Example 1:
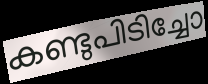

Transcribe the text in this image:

കണ്ടുപിടിച്ചോ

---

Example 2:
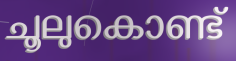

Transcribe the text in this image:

ചൂലുകൊണ്ട്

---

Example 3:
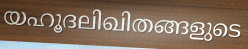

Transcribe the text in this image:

യഹൂദലിഖിതങ്ങളുടെ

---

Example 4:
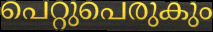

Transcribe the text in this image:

പെറ്റുപെരുകും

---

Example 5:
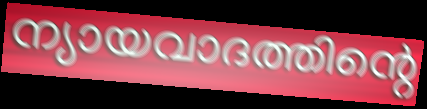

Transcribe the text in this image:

ന്യായവാദത്തിന്റെ